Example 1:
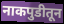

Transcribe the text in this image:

नाकपुडीतून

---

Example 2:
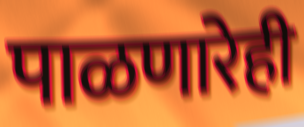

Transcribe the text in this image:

पाळणारेही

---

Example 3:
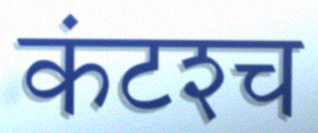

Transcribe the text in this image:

कंटश्च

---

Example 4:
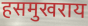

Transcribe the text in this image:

हसमुखराय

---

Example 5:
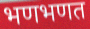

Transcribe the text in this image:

भणभणत